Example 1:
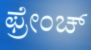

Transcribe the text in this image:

ಫ್ರೇಂಚ್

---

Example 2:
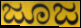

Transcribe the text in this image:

ಜೂಜ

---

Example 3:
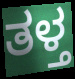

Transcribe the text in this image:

ತಳ್ತ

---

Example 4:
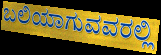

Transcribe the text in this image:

ಬಲಿಯಾಗುವವರಲ್ಲಿ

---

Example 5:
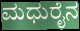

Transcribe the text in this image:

ಮಧುರೈನ